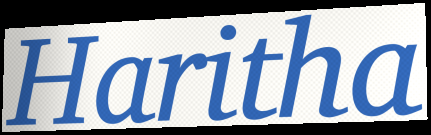
Haritha